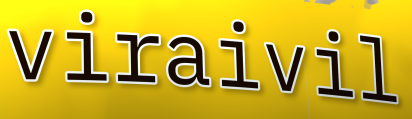
viraivil